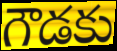
గౌడకు